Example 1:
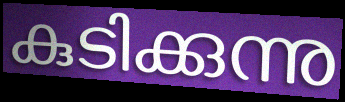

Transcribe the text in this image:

കുടിക്കുന്നു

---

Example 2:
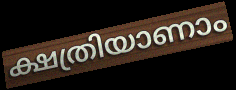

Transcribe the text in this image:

ക്ഷത്രിയാണാം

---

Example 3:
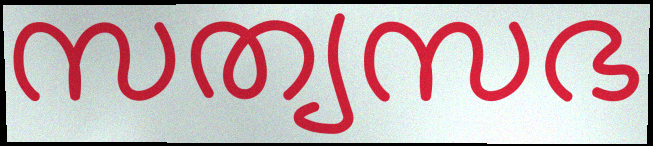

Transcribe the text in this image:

സത്യസഭ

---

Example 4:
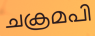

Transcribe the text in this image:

ചക്രമപി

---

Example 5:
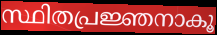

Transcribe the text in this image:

സ്ഥിതപ്രജ്ഞനാകൂ